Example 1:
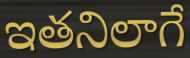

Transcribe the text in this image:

ఇతనిలాగే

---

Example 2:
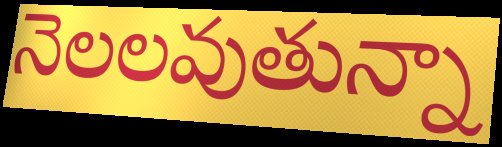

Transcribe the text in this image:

నెలలవుతున్నా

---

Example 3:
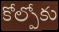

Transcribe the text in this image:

కోల్పోకు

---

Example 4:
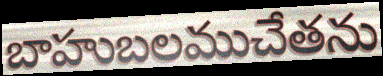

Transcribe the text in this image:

బాహుబలముచేతను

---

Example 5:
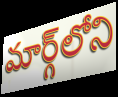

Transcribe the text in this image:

మార్గ్‌లోని